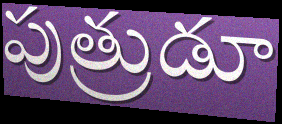
పుత్రుడూ